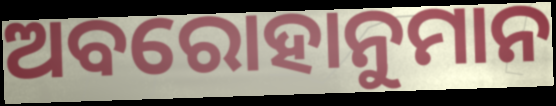
ଅବରୋହାନୁମାନ